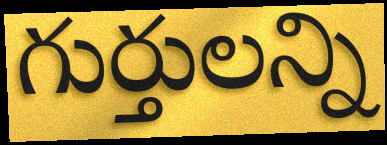
గుర్తులన్ని